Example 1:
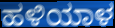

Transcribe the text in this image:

ಹಳಿಯಾಳ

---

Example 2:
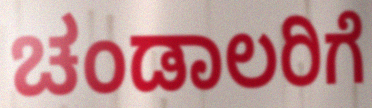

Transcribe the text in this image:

ಚಂಡಾಲರಿಗೆ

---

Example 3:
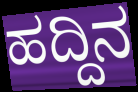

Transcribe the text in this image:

ಹದ್ದಿನ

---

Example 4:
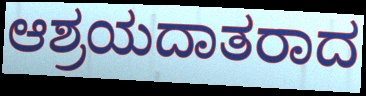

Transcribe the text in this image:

ಆಶ್ರಯದಾತರಾದ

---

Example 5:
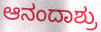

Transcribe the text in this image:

ಆನಂದಾಶ್ರು